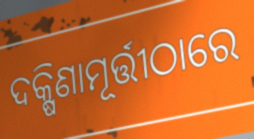
ଦକ୍ଷିଣାମୂର୍ତ୍ତୀଠାରେ